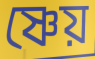
ষ্ণেয়